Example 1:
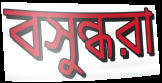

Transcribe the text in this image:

বসুন্ধরা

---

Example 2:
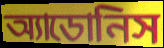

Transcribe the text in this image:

অ্যাডোনিস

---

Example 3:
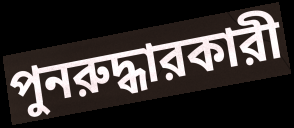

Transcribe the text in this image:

পুনরুদ্ধারকারী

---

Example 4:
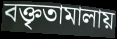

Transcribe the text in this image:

বক্তৃতামালায়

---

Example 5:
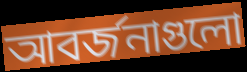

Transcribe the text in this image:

আবর্জনাগুলো